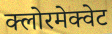
क्लोरमेक्वेट